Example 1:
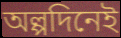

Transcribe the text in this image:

অল্পদিনেই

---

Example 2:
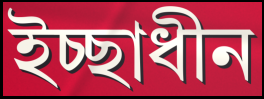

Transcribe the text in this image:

ইচ্ছাধীন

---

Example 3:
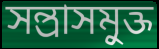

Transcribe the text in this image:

সন্ত্রাসমুক্ত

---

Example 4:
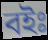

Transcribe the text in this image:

বইঃ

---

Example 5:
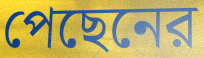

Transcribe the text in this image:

পেছেনের